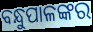
ବନ୍ଧୁପାଳଙ୍କର